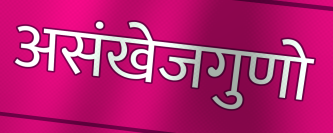
असंखेजगुणो